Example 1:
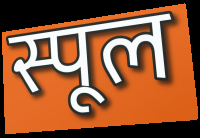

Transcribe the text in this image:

स्पूल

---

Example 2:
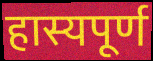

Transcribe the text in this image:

हास्यपूर्ण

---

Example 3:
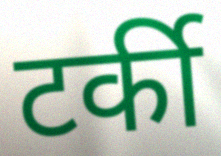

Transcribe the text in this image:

टर्की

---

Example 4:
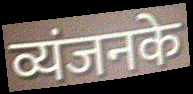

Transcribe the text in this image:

व्यंजनके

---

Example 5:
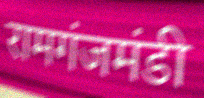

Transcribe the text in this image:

रामगंजमंडी